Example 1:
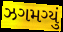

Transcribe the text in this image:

ઝગમગ્યું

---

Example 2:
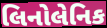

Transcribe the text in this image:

લિનોલેનિક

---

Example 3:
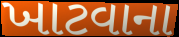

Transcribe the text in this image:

ખાટવાના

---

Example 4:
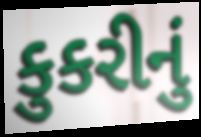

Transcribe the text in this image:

કુકરીનું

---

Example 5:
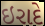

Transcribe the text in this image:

ઇરાદે